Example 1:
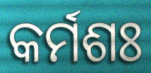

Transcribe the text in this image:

କର୍ମଶଃ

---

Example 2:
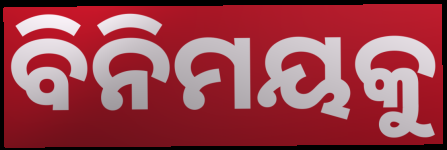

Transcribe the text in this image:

ବିନିମୟକୁ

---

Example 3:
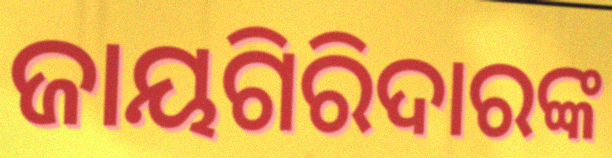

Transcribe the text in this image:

ଜାୟଗିରିଦାରଙ୍କ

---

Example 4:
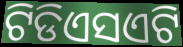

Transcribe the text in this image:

ଟିଡିଏସଏଟି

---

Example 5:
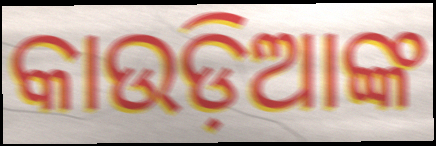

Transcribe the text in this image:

କାଉଡ଼ିଆଙ୍କ